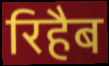
रिहैब